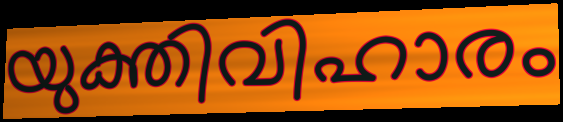
യുക്തിവിഹാരം